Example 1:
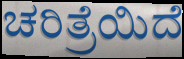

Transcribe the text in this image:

ಚರಿತ್ರೆಯಿದೆ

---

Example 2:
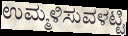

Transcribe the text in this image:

ಉಮ್ಮಳಿಸುವಳಟ್ಟಿ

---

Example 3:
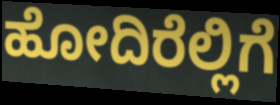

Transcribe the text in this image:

ಹೋದಿರೆಲ್ಲಿಗೆ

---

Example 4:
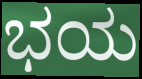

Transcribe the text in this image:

ಭಯ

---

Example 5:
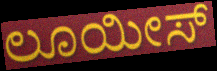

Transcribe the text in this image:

ಲೂಯೀಸ್